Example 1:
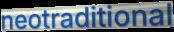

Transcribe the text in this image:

neotraditional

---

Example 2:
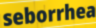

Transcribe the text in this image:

seborrhea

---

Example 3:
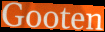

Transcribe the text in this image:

Gooten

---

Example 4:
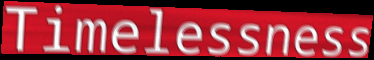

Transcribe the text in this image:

Timelessness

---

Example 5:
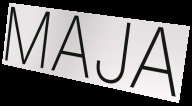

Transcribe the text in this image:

MAJA